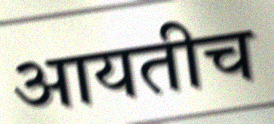
आयतीच